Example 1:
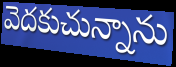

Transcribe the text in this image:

వెదకుచున్నాను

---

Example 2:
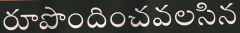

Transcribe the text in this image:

రూపొందించవలసిన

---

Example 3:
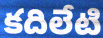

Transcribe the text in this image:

కదిలేటి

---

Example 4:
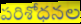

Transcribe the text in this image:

పరిశోధనల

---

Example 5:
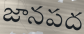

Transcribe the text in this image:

జానపద